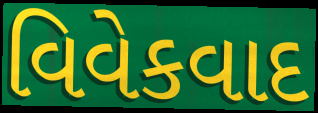
વિવેકવાદ